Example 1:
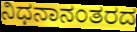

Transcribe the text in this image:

ನಿಧನಾನಂತರದ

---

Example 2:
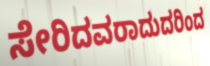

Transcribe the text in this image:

ಸೇರಿದವರಾದುದರಿಂದ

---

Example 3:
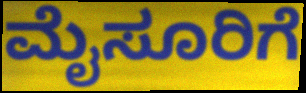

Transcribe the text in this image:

ಮೈಸೂರಿಗೆ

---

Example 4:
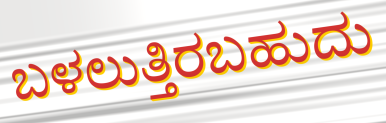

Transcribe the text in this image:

ಬಳಲುತ್ತಿರಬಹುದು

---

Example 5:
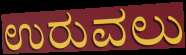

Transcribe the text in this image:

ಉರುವಲು